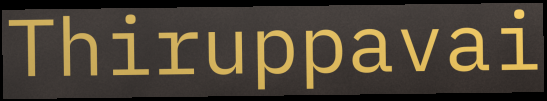
Thiruppavai